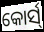
କୋର୍ସ୍